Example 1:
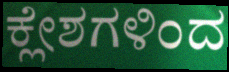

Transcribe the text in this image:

ಕ್ಲೇಶಗಳಿಂದ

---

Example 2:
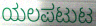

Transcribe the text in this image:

ಯಲಪಟುಟ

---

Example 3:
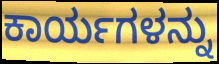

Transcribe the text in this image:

ಕಾರ್ಯಗಳನ್ನು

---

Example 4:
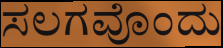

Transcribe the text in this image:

ಸಲಗವೊಂದು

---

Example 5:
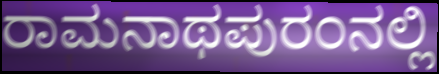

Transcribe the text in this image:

ರಾಮನಾಥಪುರಂನಲ್ಲಿ